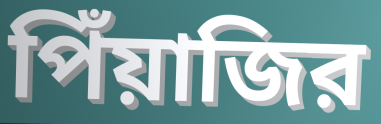
পিঁয়াজির